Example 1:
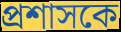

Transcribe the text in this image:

প্ৰশাসকে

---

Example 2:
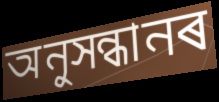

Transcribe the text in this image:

অনুসন্ধানৰ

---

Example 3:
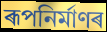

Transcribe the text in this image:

ৰূপনিৰ্মাণৰ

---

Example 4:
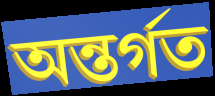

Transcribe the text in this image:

অন্তৰ্গত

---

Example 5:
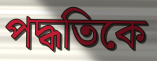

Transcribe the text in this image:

পদ্ধতিকে